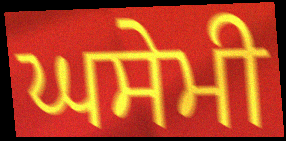
ਘਸੇਮੀ